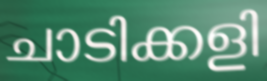
ചാടിക്കളി